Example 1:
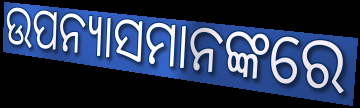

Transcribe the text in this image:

ଉପନ୍ୟାସମାନଙ୍କରେ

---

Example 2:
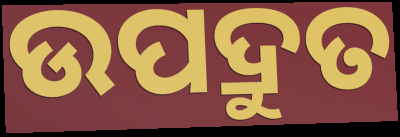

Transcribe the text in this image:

ଉପଦ୍ରୁତ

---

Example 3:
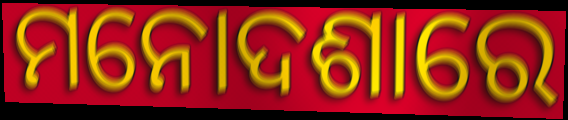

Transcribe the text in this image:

ମନୋଦଶାରେ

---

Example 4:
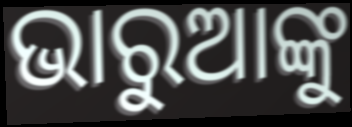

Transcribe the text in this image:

ଭାରୁଆଙ୍କୁ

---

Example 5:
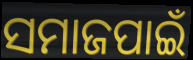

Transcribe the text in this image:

ସମାଜପାଇଁ